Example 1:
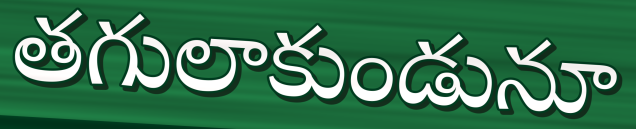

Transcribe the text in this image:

తగులాకుండునూ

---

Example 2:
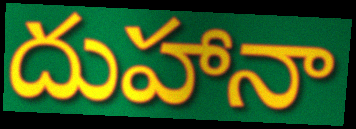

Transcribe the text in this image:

దుహానా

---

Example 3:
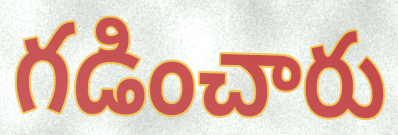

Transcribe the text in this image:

గడించారు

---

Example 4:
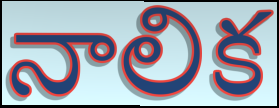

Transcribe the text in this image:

నాలిక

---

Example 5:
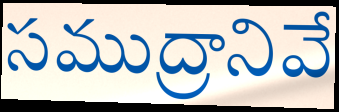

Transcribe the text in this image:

సముద్రానివే